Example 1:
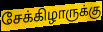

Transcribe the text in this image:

சேக்கிழாருக்கு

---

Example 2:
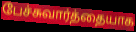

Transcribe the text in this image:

பேச்சுவார்த்தையாக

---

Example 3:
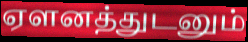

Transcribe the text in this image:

ஏளனத்துடனும்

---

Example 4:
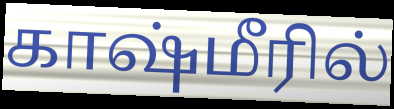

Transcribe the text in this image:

காஷ்மீரில்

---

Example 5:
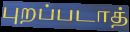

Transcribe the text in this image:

புறப்படாத்